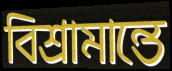
বিশ্রামান্তে